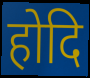
होदि